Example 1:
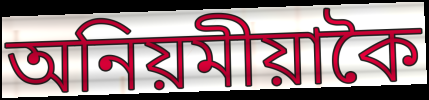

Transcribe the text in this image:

অনিয়মীয়াকৈ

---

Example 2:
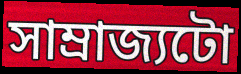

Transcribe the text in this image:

সাম্ৰাজ্যটো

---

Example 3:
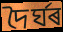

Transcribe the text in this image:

দৈৰ্ঘৰ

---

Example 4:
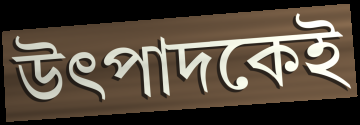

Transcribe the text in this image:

উৎপাদকেই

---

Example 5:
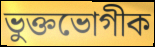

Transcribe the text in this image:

ভুক্তভোগীক